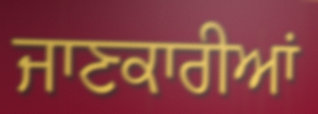
ਜਾਣਕਾਰੀਆਂ